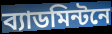
ব্যাডমিন্টনে